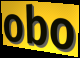
obo